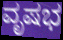
ವೃಷಭ